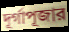
দূর্গাপূজার